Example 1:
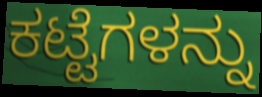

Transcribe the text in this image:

ಕಟ್ಟೆಗಳನ್ನು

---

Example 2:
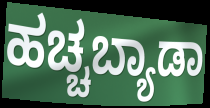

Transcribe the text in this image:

ಹಚ್ಚಬ್ಯಾಡಾ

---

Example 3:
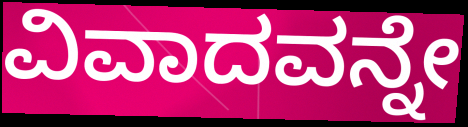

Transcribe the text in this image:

ವಿವಾದವನ್ನೇ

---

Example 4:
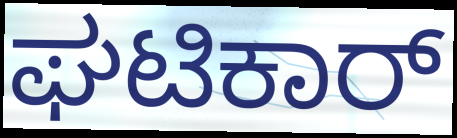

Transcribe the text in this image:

ಘಟಿಕಾರ್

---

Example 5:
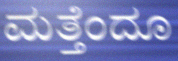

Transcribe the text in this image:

ಮತ್ತೆಂದೂ